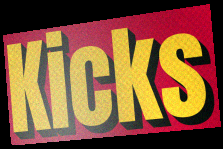
Kicks